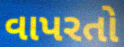
વાપરતો